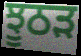
ਝੂਠੜ